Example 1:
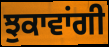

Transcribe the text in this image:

ਝੁਕਾਵਾਂਗੀ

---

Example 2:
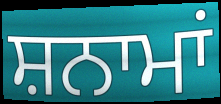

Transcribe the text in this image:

ਸ਼ਨਾਮਾਂ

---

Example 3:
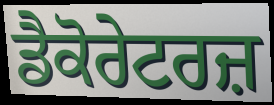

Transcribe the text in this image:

ਡੈਕੋਰੇਟਰਜ਼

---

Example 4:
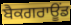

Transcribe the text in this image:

ਬੈਕਗਰਾਊਂਡ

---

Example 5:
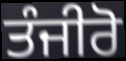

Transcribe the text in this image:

ਤੰਜੀਰੋ